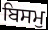
ਬਿਸਮੁ